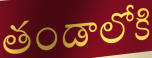
తండాలోకి